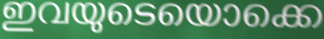
ഇവയുടെയൊക്കെ